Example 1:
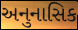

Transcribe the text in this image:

અનુનાસિક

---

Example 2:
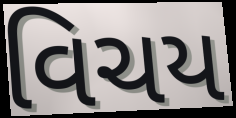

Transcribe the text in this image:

વિચય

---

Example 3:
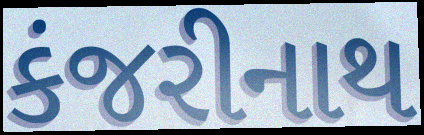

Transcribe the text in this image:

કંજરીનાથ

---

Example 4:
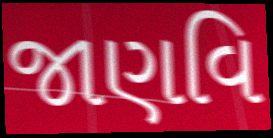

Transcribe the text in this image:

જાણવિ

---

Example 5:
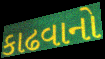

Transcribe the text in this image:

કાઢવાનો